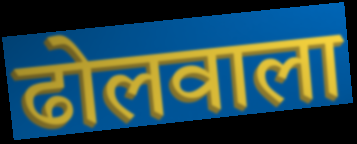
ढोलवाला